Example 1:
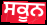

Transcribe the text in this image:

ਸਕੂਨ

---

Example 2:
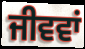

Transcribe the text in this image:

ਜੀਵਵਾਂ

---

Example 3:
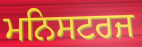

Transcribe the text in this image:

ਮਨਿਸਟਰਜ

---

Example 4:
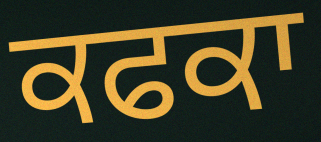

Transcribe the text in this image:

ਕਫਕਾ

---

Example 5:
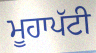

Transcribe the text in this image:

ਮੂਹਾਪੱਟੀ